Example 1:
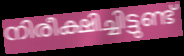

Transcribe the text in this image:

നിരീക്ഷിച്ചിട്ടുണ്ട്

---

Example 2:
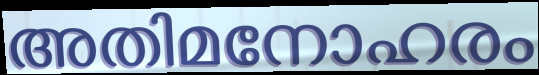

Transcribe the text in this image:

അതിമനോഹരം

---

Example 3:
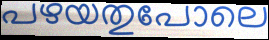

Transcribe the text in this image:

പഴയതുപോലെ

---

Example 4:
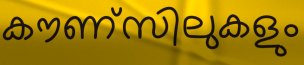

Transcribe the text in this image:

കൗണ്സിലുകളും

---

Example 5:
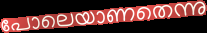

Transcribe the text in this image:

പോലെയാണതെന്നു